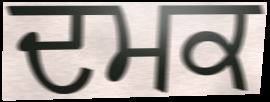
ਦਮਕ